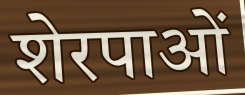
शेरपाओं